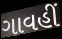
ગાવહીં